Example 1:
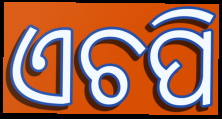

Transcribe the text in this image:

ଏଚପି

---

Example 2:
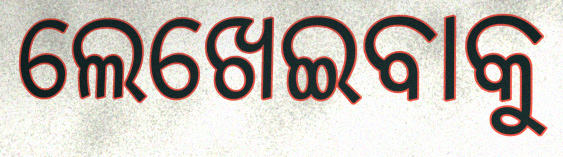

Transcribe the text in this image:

ଲେଖେଇବାକୁ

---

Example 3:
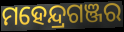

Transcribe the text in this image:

ମହେନ୍ଦ୍ରଗଞ୍ଜର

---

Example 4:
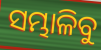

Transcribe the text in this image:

ସମ୍ଭାଳିବୁ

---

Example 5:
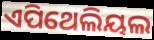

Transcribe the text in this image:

ଏପିଥେଲିୟଲ